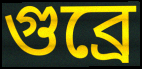
গুব্রে